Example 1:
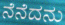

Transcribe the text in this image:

ನೆನೆದನು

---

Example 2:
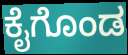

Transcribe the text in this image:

ಕೈಗೊಂಡ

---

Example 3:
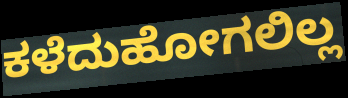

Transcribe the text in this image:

ಕಳೆದುಹೋಗಲಿಲ್ಲ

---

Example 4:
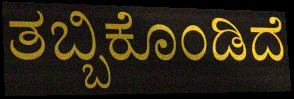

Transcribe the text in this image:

ತಬ್ಬಿಕೊಂಡಿದೆ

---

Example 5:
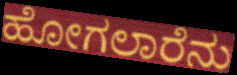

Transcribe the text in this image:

ಹೋಗಲಾರೆನು